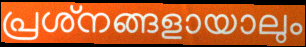
പ്രശ്‌നങ്ങളായാലും